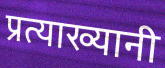
प्रत्याख्यानी